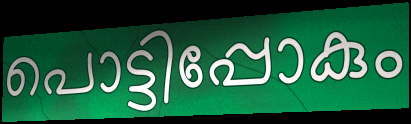
പൊട്ടിപ്പോകും